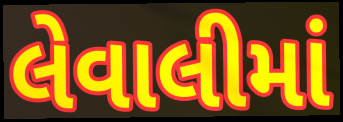
લેવાલીમાં